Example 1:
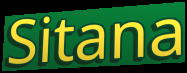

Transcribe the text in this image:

Sitana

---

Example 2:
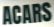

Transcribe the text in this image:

ACARS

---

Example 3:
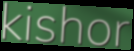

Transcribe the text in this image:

kishor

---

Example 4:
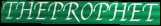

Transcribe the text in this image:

THEPROPHET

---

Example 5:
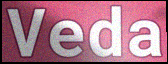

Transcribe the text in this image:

Veda